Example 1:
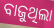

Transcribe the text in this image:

ବାଜୁଥିଲା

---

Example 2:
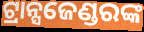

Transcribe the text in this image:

ଟ୍ରାନ୍ସଜେଣ୍ଡରଙ୍କ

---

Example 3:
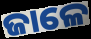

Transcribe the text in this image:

ଜାଳେ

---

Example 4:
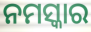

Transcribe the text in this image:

ନମସ୍କାର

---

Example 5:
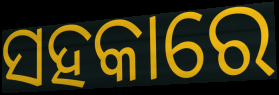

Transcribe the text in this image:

ସହକାରେ